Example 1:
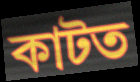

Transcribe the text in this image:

কাটত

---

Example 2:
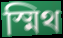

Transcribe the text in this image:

স্মিথ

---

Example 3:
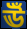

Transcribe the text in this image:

ঊঁ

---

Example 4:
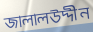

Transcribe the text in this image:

জালালউদ্দীন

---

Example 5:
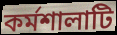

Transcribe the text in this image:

কর্মশালাটি